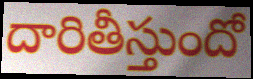
దారితీస్తుందో